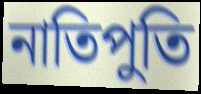
নাতিপুতি